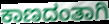
ಕಾಣದಂತಾಗಿ